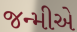
જન્મીએ